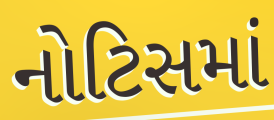
નોટિસમાં